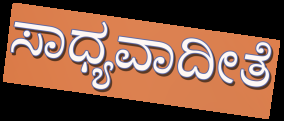
ಸಾಧ್ಯವಾದೀತೆ